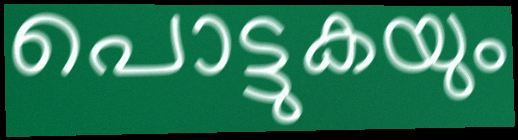
പൊട്ടുകയും